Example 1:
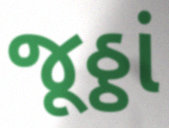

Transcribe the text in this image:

જૂઠ્ઠાં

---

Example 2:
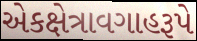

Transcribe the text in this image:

એકક્ષેત્રાવગાહરૂપે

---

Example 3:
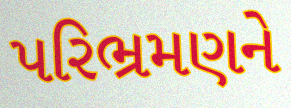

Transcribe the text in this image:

પરિભ્રમણને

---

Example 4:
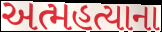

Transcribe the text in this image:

અત્મહત્યાના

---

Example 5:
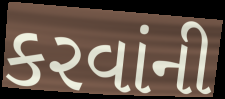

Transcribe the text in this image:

કરવાંની